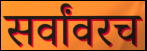
सर्वांवरच